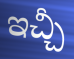
ఇచ్చీ